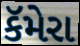
કૅમેરા